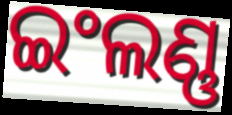
ଇଂଲଣ୍ଣ